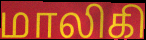
மாலிகி